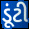
ડૂંટી